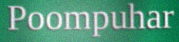
Poompuhar